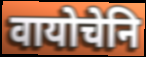
वायोचेनि